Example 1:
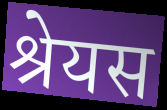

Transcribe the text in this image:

श्रेयस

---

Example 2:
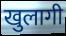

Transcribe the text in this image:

खुलागी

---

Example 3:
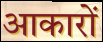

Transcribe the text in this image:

आकारों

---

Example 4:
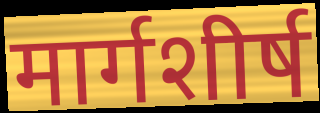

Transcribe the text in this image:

मार्गशीर्ष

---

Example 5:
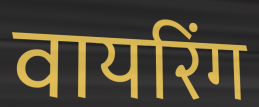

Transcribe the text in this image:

वायरिंग